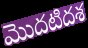
మొదటిదశ